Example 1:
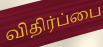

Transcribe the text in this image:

விதிர்ப்பை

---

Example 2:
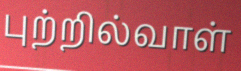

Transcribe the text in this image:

புற்றில்வாள்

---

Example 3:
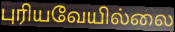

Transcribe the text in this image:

புரியவேயில்லை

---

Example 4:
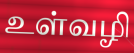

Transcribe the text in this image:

உள்வழி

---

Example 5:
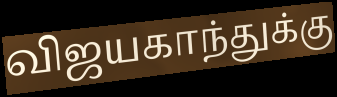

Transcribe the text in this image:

விஜயகாந்துக்கு